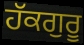
ਹੱਕਗੁਰੂ